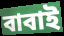
বাবাই